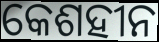
କେଶହୀନ